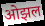
ओझल